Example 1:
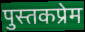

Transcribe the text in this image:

पुस्तकप्रेम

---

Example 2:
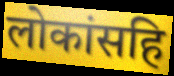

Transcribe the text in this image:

लोकांसहि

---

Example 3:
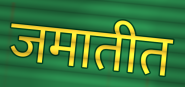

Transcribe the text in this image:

जमातीत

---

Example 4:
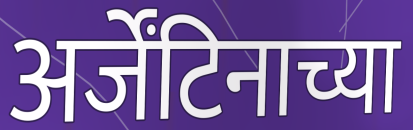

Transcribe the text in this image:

अर्जेंटिनाच्या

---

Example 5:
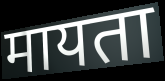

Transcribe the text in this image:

मायता